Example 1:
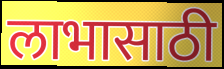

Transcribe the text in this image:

लाभासाठी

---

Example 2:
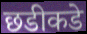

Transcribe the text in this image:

छडीकडे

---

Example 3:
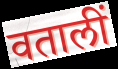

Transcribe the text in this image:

वतालीं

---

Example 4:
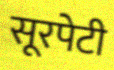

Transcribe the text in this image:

सूरपेटी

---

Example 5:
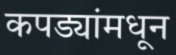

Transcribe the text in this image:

कपड्यांमधून